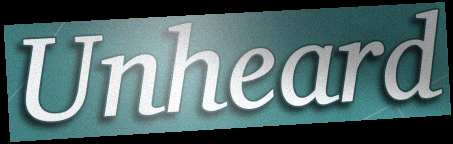
Unheard